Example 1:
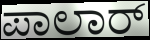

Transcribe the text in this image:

ಪಾಲಾರ್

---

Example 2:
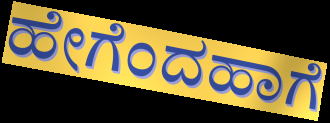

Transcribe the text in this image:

ಹೇಗೆಂದಹಾಗೆ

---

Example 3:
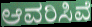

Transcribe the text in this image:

ಆವರಿಸಿವೆ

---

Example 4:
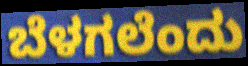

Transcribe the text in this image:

ಬೆಳಗಲೆಂದು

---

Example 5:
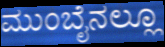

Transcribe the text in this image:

ಮುಂಬೈನಲ್ಲೂ